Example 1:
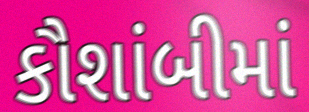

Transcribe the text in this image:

કૌશાંબીમાં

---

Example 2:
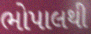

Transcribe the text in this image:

ભોપાલથી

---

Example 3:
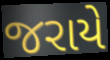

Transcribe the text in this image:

જરાયે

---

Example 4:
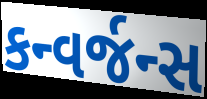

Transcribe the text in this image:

કન્વર્જન્સ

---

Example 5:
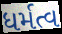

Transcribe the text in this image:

ધર્મત્વ